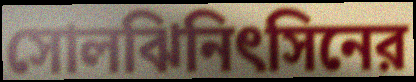
সোলঝিনিৎসিনের